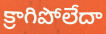
క్రాగిపోలేదా